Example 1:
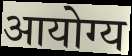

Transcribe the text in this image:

आयोग्य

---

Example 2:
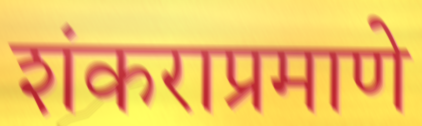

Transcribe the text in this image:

शंकराप्रमाणे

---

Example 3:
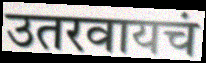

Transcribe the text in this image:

उतरवायचं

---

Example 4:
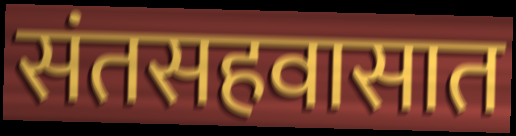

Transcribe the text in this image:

संतसहवासात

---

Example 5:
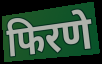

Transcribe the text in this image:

फिरणे